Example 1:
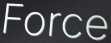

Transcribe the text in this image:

Force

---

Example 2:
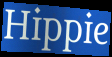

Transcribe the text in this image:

Hippie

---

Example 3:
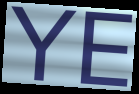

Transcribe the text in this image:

YE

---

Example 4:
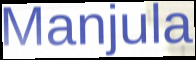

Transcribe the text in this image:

Manjula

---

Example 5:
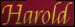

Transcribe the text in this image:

Harold